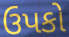
ઉપકો